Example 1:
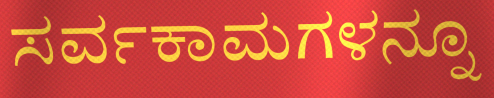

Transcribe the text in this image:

ಸರ್ವಕಾಮಗಳನ್ನೂ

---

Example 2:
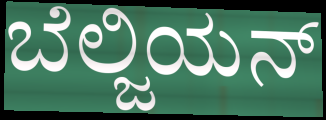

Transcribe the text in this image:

ಬೆಲ್ಜಿಯನ್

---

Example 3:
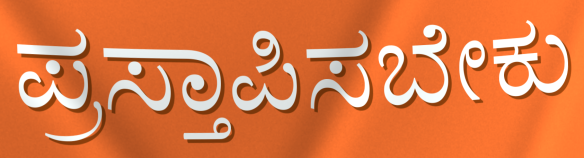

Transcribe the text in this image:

ಪ್ರಸ್ತಾಪಿಸಬೇಕು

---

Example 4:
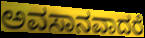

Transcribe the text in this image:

ಅವಸಾನವಾದರೆ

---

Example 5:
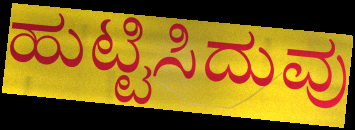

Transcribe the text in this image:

ಹುಟ್ಟಿಸಿದುವು